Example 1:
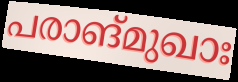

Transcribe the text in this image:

പരാങ്മുഖാഃ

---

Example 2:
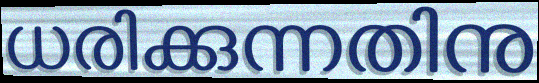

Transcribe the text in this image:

ധരിക്കുന്നതിനു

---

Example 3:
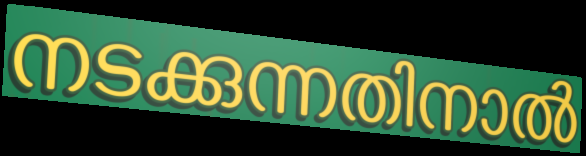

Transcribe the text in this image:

നടക്കുന്നതിനാൽ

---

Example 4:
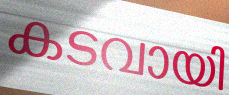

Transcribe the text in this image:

കടവായി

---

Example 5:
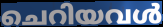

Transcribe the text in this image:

ചെറിയവൾ